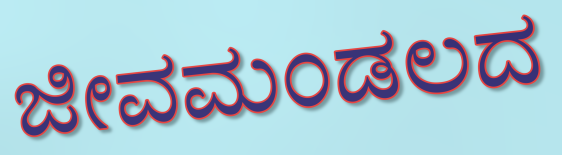
ಜೀವಮಂಡಲದ